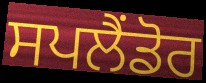
ਸਪਲੈਂਡੋਰ